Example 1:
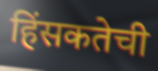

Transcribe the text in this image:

हिंसकतेची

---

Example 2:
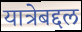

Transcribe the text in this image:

यात्रेबद्दल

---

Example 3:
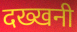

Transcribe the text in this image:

दख्खनी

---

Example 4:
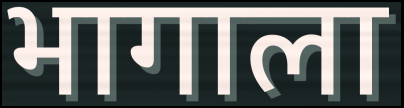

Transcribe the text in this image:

भागाला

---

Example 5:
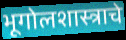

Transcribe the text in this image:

भूगोलशास्त्राचे